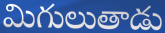
మిగులుతాడు